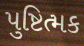
પુષ્ટિત્મક